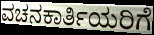
ವಚನಕಾರ್ತಿಯರಿಗೆ